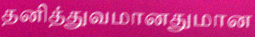
தனித்துவமானதுமான